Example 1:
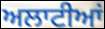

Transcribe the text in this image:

ਅਲਾਟੀਆਂ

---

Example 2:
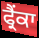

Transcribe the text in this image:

ਫ੍ਰੈਂਕਾ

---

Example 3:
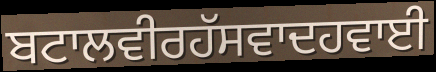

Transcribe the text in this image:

ਬਟਾਲਵੀਰਹੱਸਵਾਦਹਵਾਈ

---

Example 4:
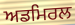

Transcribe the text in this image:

ਅਡਮਿਰਲ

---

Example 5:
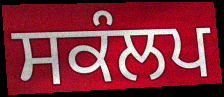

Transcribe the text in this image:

ਸਕੰਲਪ